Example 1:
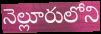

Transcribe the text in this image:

నెల్లూరులోని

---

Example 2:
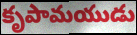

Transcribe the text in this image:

కృపామయుడు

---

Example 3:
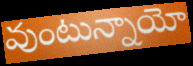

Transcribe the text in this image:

వుంటున్నాయో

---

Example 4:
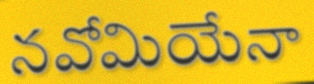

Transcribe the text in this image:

నవోమియేనా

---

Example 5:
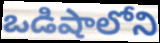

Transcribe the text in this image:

ఒడిషాలోని